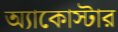
অ্যাকোস্টার